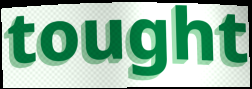
tought